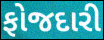
ફોજદારી